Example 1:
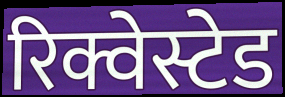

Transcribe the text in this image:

रिक्वेस्टेड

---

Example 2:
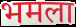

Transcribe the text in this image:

भमला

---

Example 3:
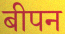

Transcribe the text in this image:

बीपन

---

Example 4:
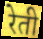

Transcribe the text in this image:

रेती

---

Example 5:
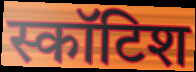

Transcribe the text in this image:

स्कॉटिश